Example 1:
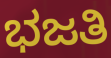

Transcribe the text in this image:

ಭಜತಿ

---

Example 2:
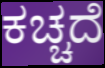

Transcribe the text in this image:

ಕಚ್ಚದೆ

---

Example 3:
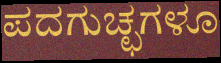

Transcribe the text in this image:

ಪದಗುಚ್ಛಗಳೂ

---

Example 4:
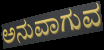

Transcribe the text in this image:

ಅನುವಾಗುವ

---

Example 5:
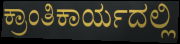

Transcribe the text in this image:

ಕ್ರಾಂತಿಕಾರ್ಯದಲ್ಲಿ